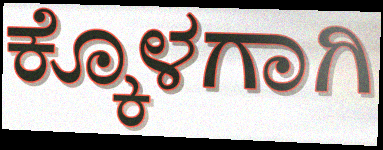
ಕ್ಕೊಳಗಾಗಿ